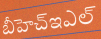
బీహెచ్ఇఎల్